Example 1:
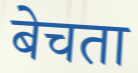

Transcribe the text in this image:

बेचता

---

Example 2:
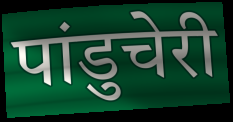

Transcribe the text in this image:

पांडुचेरी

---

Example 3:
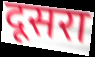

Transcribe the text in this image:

दूसरा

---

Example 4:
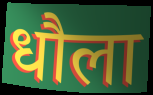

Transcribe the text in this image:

धौला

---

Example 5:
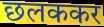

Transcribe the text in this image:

छलककर